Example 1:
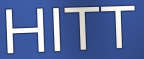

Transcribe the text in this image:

HITT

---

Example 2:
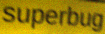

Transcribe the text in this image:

superbug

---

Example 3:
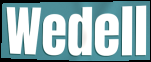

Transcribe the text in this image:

Wedell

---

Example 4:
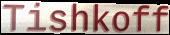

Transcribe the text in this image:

Tishkoff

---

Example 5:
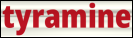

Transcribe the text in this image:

tyramine